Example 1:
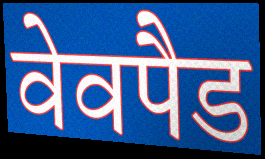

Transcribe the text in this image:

वेवपैड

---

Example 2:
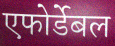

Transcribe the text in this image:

एफोर्डेबल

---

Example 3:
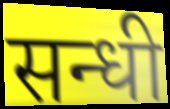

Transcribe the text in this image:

सन्धी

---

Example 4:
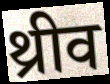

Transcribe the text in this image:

थ्रीव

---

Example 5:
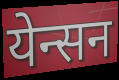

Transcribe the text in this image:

येन्सन